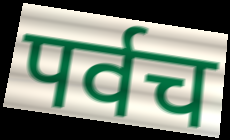
पर्वच